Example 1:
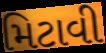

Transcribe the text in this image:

મિટાવી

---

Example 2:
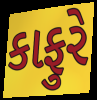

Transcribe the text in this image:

કાફુરે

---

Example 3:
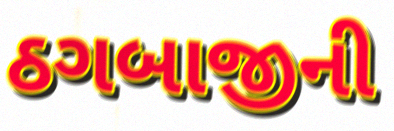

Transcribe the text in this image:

ઠગબાજીની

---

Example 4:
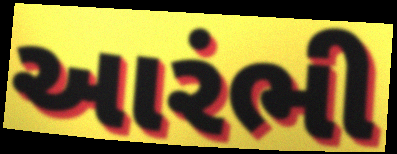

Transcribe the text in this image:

આરંભી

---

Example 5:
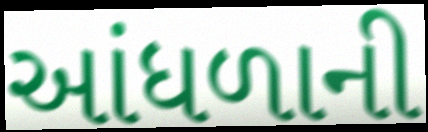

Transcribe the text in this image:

આંધળાની